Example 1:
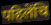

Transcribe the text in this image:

पहिलेंचि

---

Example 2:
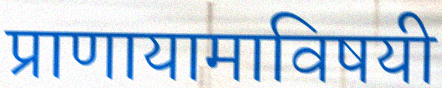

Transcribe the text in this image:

प्राणायामाविषयी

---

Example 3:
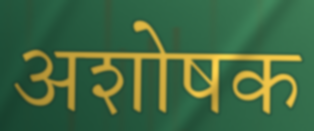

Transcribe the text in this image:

अशोषक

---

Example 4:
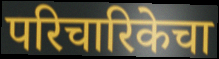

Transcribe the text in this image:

परिचारिकेचा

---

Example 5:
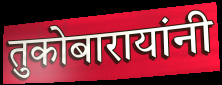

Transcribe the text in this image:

तुकोबारायांनी